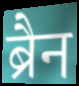
ब्रैन